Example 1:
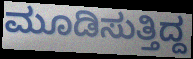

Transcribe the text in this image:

ಮೂಡಿಸುತ್ತಿದ್ದ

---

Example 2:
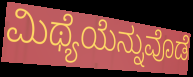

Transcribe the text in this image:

ಮಿಥ್ಯೆಯೆನ್ನುವೊಡೆ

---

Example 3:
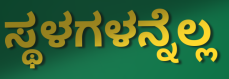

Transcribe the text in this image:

ಸ್ಥಳಗಳನ್ನೆಲ್ಲ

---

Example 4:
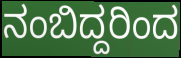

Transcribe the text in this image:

ನಂಬಿದ್ದರಿಂದ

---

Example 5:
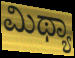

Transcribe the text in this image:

ಮಿಥ್ಯಾ